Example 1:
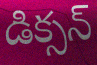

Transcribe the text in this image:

డిక్సన్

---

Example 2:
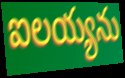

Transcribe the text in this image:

ఐలయ్యను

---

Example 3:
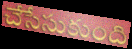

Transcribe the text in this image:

చేసేసుకుంది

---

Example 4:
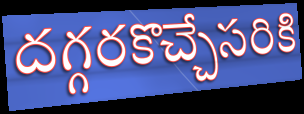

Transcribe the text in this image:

దగ్గరకొచ్చేసరికి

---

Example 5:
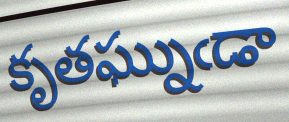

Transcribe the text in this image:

కృతఘ్నుఁడా